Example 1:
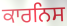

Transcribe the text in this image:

ਕਾਰਨਿਸ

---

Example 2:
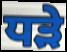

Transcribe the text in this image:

ਧੜੇ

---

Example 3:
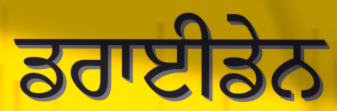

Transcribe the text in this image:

ਡਰਾਈਡੇਨ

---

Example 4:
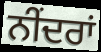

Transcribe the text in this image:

ਨੀਂਦਰਾਂ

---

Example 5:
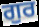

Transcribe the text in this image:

ਗੁਰ